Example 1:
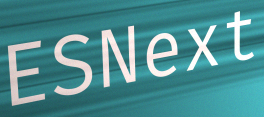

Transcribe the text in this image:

ESNext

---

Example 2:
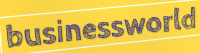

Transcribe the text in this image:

businessworld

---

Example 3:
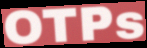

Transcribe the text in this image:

OTPs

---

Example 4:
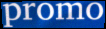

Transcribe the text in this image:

promo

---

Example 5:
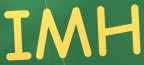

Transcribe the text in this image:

IMH